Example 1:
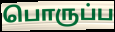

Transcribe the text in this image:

பொருப்ப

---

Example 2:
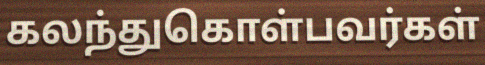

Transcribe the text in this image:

கலந்துகொள்பவர்கள்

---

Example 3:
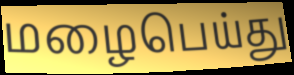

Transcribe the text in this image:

மழைபெய்து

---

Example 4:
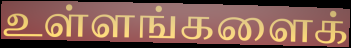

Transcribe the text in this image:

உள்ளங்களைக்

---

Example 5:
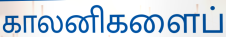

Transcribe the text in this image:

காலனிகளைப்